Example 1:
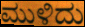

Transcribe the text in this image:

ಮುಳಿದು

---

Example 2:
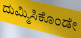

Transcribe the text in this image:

ದುಮ್ಮಿಸಿಕೊಂಡೇ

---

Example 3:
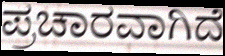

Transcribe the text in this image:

ಪ್ರಚಾರವಾಗಿದೆ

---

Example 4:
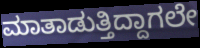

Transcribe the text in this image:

ಮಾತಾಡುತ್ತಿದ್ದಾಗಲೇ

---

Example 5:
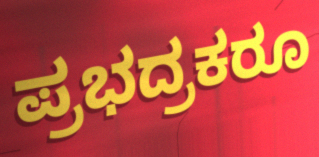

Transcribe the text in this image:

ಪ್ರಭದ್ರಕರೂ